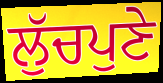
ਲੁੱਚਪੁਣੇ